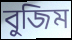
বুজিম